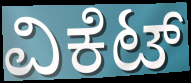
ವಿಕೆಟ್